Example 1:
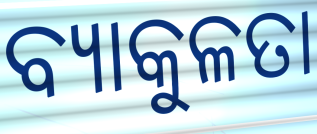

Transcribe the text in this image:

ବ୍ୟାକୁଳତା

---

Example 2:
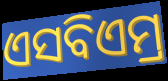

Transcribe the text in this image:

ଏସବିଏମ୍ର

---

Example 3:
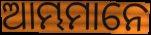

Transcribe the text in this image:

ଆମ୍ଭମାନେ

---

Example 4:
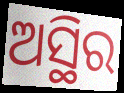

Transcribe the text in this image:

ଅସ୍ଥିର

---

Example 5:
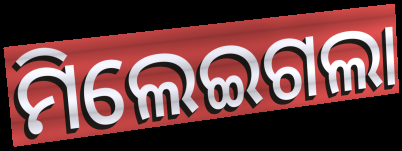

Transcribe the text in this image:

ମିଲେଇଗଲା